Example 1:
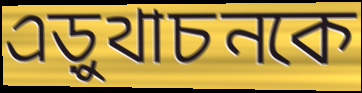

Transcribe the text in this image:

এড়ুথাচনকে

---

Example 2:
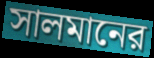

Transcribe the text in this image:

সালমানের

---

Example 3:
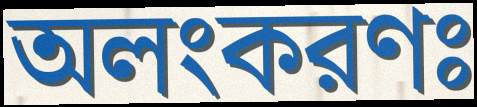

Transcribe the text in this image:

অলংকরণঃ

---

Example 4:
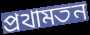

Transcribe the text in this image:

প্রথামতন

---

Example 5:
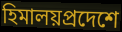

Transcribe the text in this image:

হিমালয়প্রদেশে